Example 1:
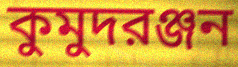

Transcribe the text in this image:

কুমুদরঞ্জন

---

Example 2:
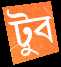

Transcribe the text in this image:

টুব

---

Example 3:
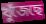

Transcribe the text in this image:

খুঁজেছে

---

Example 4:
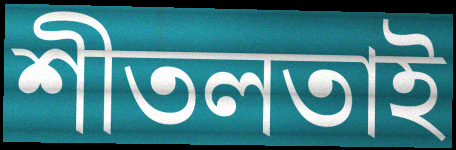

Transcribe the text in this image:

শীতলতাই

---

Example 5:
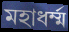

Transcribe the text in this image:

মহাধর্ম্ম